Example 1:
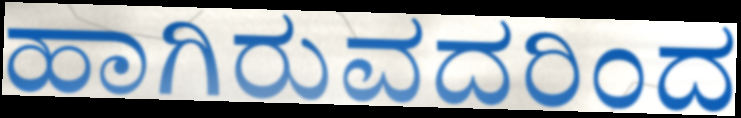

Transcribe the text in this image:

ಹಾಗಿರುವದರಿಂದ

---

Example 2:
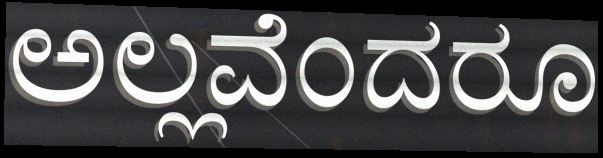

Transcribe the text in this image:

ಅಲ್ಲವೆಂದರೂ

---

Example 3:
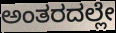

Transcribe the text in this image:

ಅಂತರದಲ್ಲೇ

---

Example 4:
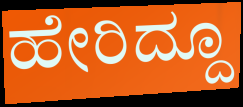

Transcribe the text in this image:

ಹೇರಿದ್ದೂ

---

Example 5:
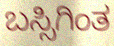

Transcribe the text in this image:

ಬಸ್ಸಿಗಿಂತ